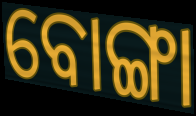
ବୋଙ୍ଗା